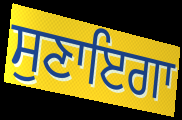
ਸੁਣਾਇਗਾ